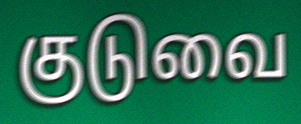
குடுவை